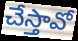
చేస్తావో